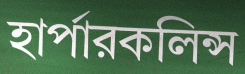
হার্পারকলিন্স